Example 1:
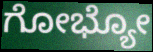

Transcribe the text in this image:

ಗೋಭ್ಯೋ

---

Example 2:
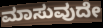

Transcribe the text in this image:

ಮಾಸುವುದೇ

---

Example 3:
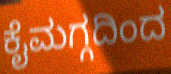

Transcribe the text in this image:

ಕೈಮಗ್ಗದಿಂದ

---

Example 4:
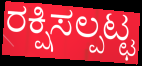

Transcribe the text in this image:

ರಕ್ಷಿಸಲ್ಪಟ್ಟ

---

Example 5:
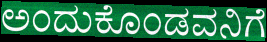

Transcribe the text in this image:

ಅಂದುಕೊಂಡವನಿಗೆ